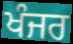
ਖੰਜਰ